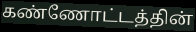
கண்ணோட்டத்தின்